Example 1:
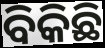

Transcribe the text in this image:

ବିକିଛି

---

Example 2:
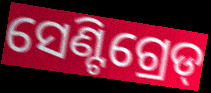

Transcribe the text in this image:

ସେଣ୍ଟିଗ୍ରେଡ୍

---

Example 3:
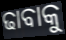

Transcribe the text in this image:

ଢାବାକୁ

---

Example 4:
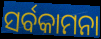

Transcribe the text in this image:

ସର୍ବକାମନା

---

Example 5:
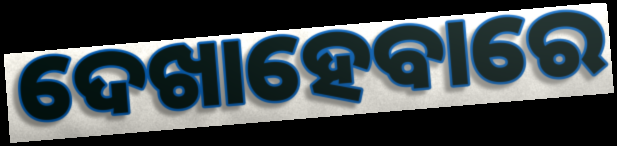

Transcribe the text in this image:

ଦେଖାହେବାରେ